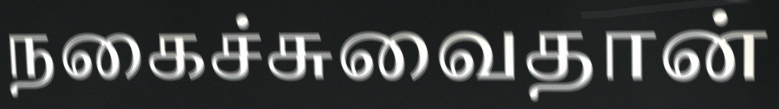
நகைச்சுவைதான்